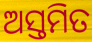
ଅସ୍ତମିତ